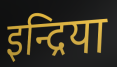
इन्द्रिया